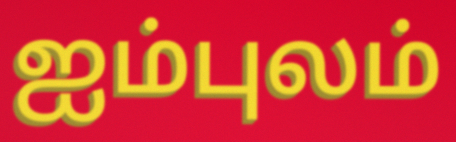
ஐம்புலம்